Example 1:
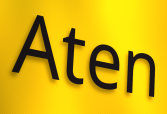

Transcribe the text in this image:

Aten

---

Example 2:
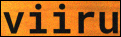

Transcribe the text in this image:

viiru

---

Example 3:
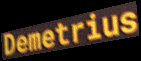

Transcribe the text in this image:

Demetrius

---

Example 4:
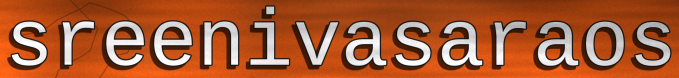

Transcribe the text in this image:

sreenivasaraos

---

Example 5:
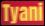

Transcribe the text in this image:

Tyani